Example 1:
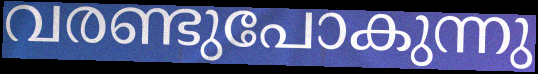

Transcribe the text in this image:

വരണ്ടുപോകുന്നു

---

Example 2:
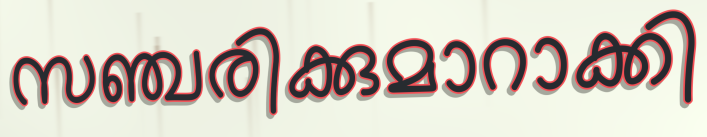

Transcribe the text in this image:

സഞ്ചരിക്കുമാറാക്കി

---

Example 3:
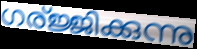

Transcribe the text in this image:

ഗര്ജ്ജിക്കുന്നു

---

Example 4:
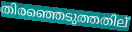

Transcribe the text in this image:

തിരഞ്ഞെടുത്തതില്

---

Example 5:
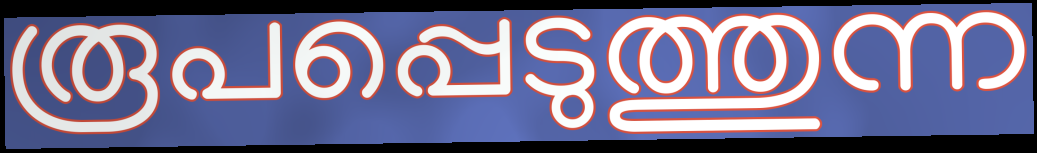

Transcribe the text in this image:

രൂപപ്പെടുത്തുന്ന